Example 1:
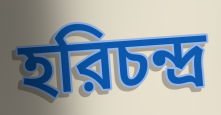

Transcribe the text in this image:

হরিচন্দ্র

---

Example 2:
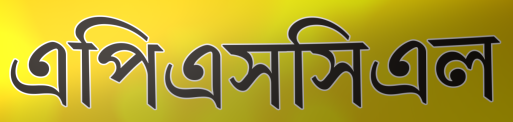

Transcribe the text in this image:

এপিএসসিএল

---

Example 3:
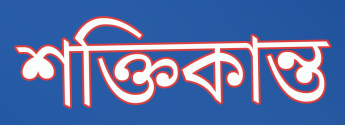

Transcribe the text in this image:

শক্তিকান্ত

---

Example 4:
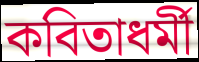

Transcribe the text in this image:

কবিতাধর্মী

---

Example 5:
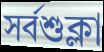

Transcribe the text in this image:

সর্বশুক্লা